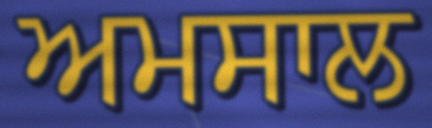
ਅਮਸਾਲ